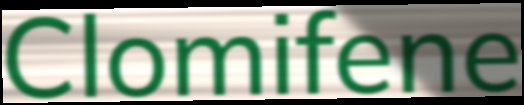
Clomifene